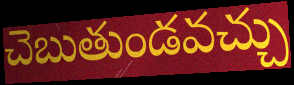
చెబుతుండవచ్చు